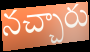
నచ్చారు